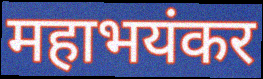
महाभयंकर